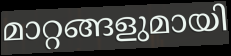
മാറ്റങ്ങളുമായി